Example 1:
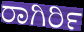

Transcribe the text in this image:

ರಾಗಿರ್ರಿ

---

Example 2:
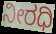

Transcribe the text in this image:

ನೀರಧಿ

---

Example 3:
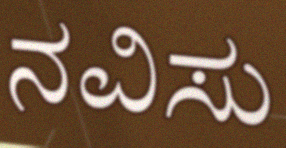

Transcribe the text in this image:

ನವಿಸು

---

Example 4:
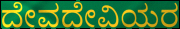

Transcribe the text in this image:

ದೇವದೇವಿಯರ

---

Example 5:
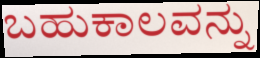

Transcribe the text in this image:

ಬಹುಕಾಲವನ್ನು